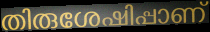
തിരുശേഷിപ്പാണ്